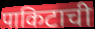
पाकिटाची